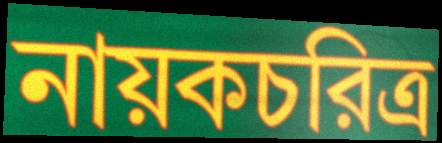
নায়কচরিত্র